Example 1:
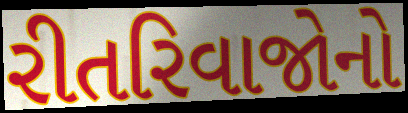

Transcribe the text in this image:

રીતરિવાજોનો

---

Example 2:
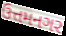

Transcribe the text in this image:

ઉત્તમનગર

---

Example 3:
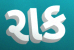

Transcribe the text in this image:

રાક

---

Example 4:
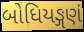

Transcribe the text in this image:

બોધિયઙ્ગણં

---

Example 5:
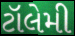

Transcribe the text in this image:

ટૉલેમી